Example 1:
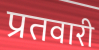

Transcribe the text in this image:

प्रतवारी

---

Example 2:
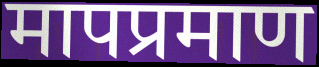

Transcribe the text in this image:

मापप्रमाण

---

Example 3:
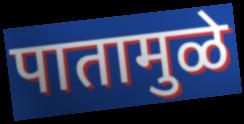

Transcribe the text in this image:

पातामुळे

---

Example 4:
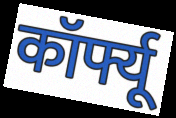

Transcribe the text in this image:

कॉर्फ्यू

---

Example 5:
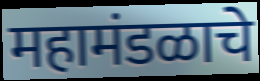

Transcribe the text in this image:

महामंडळाचे